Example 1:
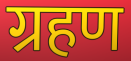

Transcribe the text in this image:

ग्रहण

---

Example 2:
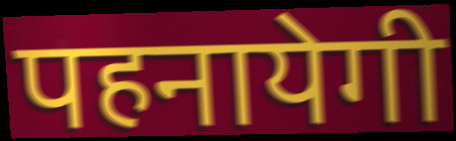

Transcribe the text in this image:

पहनायेगी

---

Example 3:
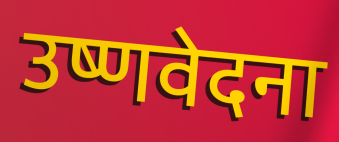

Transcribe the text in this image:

उष्णवेदना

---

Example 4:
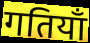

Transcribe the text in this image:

गतियाँ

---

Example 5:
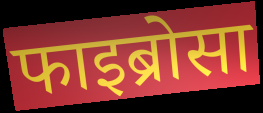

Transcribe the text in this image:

फाइब्रोसा